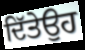
ਦਿੱਤੇਉਹ